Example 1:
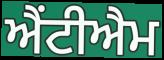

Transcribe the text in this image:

ਐਂਟੀਐਮ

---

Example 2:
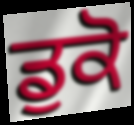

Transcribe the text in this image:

ਡੁਕੋ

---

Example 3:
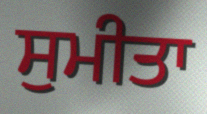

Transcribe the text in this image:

ਸੁਮੀਤਾ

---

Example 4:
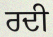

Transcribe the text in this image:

ਰਦੀ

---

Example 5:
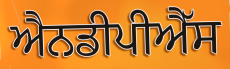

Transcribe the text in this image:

ਐਨਡੀਪੀਐੱਸ